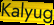
Kalyug